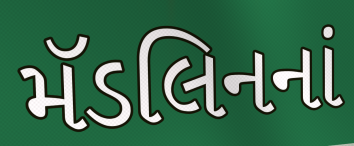
મૅડલિનનાં